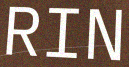
RIN